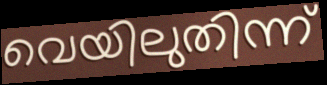
വെയിലുതിന്ന്